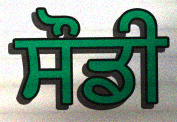
ਸੌਡੀ